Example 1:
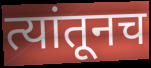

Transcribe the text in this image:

त्यांतूनच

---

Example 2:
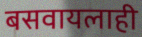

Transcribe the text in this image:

बसवायलाही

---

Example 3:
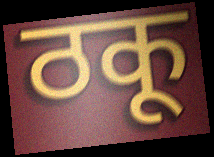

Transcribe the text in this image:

ठकू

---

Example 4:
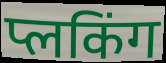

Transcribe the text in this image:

प्लकिंग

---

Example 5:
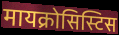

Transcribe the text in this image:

मायक्रोसिस्टिस